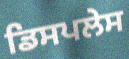
ਡਿਸਪਲੇਸ